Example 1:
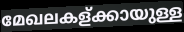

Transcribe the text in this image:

മേഖലകള്ക്കായുള്ള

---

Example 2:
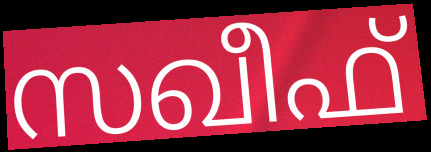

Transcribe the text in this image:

സഖീഫ്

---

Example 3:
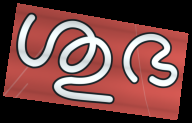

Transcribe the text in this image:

ശുഭ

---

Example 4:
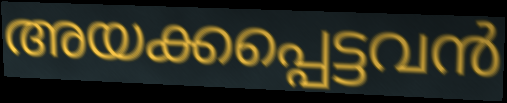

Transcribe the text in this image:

അയക്കപ്പെട്ടവൻ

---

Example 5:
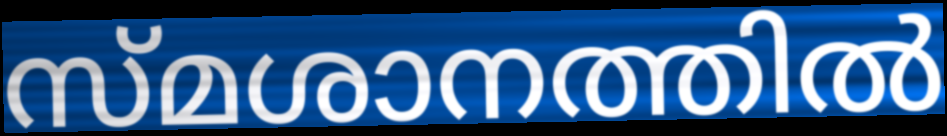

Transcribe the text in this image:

സ്മശാനത്തിൽ